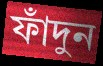
ফাঁদুন